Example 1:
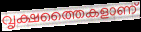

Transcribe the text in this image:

വൃക്ഷത്തൈകളാണ്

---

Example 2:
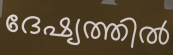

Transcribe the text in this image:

ദേഷ്യത്തിൽ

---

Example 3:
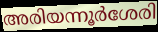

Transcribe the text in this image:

അരിയന്നൂർശേരി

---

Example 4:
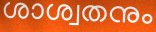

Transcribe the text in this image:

ശാശ്വതനും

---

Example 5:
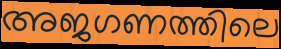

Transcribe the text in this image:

അജഗണത്തിലെ